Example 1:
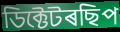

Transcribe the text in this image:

ডিক্টেটৰছিপ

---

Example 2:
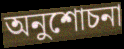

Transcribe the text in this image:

অনুশোচনা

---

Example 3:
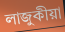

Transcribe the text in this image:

লাজুকীয়া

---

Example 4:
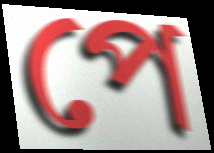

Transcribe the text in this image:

পে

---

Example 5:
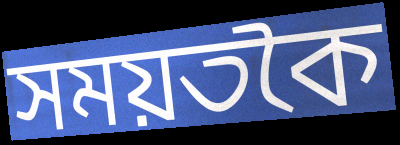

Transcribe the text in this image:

সময়তকৈ